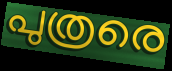
പുത്രരെ